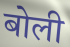
बोली